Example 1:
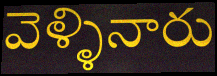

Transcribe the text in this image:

వెళ్ళినారు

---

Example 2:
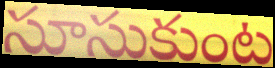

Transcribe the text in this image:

సూసుకుంట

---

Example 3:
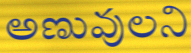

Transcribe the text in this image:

అణువులని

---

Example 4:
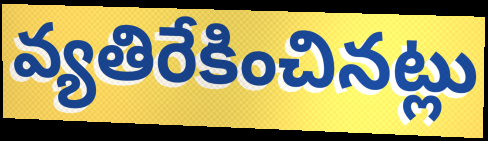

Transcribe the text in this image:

వ్యతిరేకించినట్లు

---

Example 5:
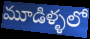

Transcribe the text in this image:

మూడిళ్ళలో